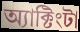
অ্যাক্টিংটা